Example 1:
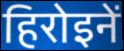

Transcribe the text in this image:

हिरोइनें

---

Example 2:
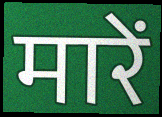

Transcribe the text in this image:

मारें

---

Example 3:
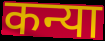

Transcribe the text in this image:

कन्या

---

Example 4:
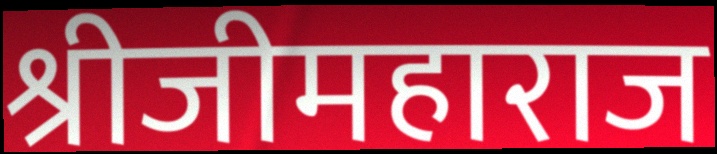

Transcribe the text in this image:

श्रीजीमहाराज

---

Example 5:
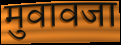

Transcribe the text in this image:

मुवावजा